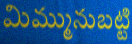
మిమ్మునుబట్టి